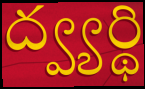
ద్వ్యర్థి